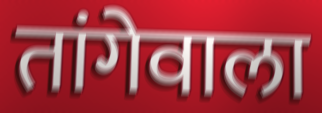
तांगेवाला